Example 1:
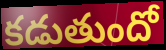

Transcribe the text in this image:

కడుతుందో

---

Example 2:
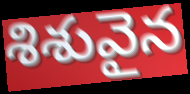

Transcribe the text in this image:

శిశువైన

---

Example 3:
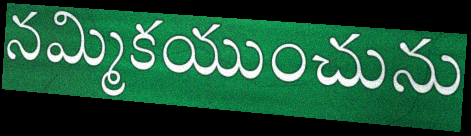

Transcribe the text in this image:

నమ్మికయుంచును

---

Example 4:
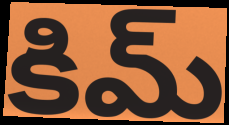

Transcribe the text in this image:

కిమ్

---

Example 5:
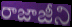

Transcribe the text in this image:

రాజాజీని